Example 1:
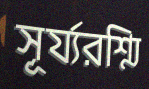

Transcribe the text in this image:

সূর্য্যরশ্মি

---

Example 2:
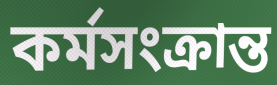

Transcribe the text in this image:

কর্মসংক্রান্ত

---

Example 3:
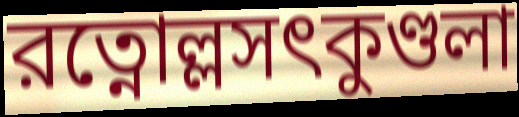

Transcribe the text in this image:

রত্নোল্লসৎকুণ্ডলা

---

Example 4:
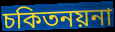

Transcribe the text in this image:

চকিতনয়না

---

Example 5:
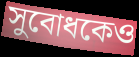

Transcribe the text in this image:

সুবোধকেও